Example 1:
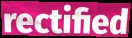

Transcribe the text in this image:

rectified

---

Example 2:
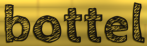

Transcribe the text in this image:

bottel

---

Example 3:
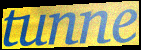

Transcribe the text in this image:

tunne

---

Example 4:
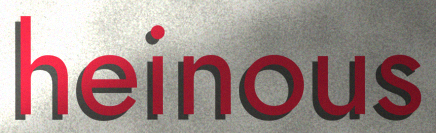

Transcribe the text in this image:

heinous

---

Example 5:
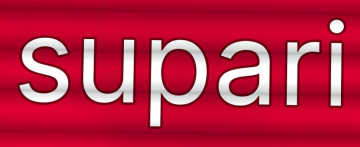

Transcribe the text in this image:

supari